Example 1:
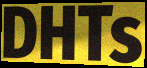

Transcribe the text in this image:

DHTs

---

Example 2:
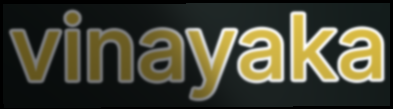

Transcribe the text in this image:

vinayaka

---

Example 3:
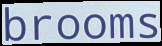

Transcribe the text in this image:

brooms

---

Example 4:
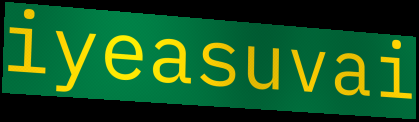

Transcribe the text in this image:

iyeasuvai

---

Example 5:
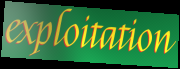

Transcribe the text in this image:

exploitation